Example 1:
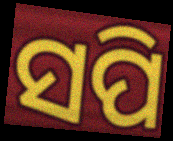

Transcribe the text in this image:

ସପି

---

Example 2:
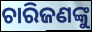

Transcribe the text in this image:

ଚାରିଜଣଙ୍କୁ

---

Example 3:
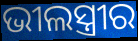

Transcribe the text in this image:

ଭୀଲସ୍ତ୍ରୀର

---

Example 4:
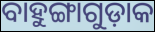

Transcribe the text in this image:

ବାହୁଙ୍ଗାଗୁଡ଼ାକ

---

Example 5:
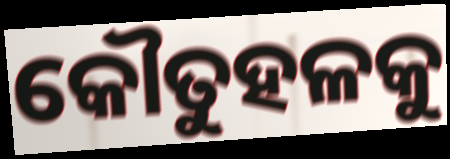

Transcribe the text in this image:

କୌତୁହଳକୁ